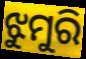
ଝୁମୁରି